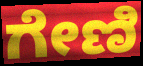
ಗೇಣಿ